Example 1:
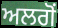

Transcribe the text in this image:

ਅਲਗੋਂ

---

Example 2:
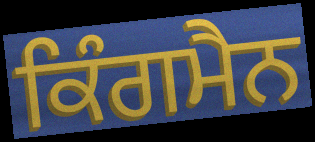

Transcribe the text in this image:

ਕਿੰਗਮੈਨ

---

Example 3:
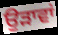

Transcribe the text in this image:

ਉੜਾਵਾਂ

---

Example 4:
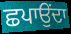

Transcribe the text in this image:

ਛਪਾਉਂਦਾ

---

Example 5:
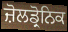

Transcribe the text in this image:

ਜ਼ੋਲਡ੍ਰੋਨਿਕ